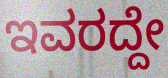
ಇವರದ್ದೇ